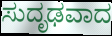
ಸುದೃಢವಾದ